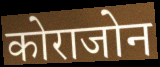
कोराजोन